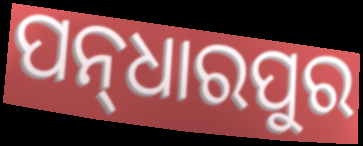
ପନ୍‌ଧାରପୁର